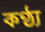
কণ্ঠ্য